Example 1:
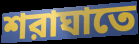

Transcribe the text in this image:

শরাঘাতে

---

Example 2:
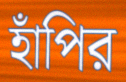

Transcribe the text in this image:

হাঁপির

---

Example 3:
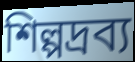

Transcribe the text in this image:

শিল্পদ্রব্য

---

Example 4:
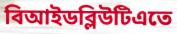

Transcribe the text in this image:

বিআইডব্লিউটিএতে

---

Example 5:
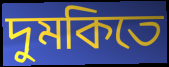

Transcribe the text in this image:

দুমকিতে